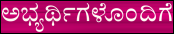
ಅಭ್ಯರ್ಥಿಗಳೊಂದಿಗೆ